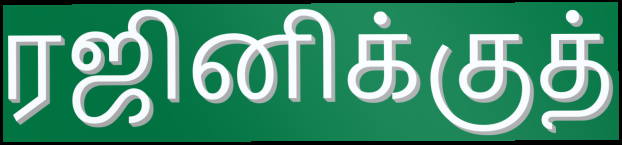
ரஜினிக்குத்